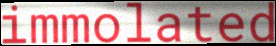
immolated